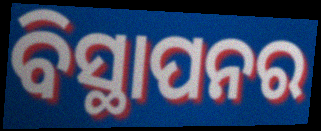
ବିସ୍ଥାପନର